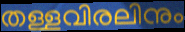
തള്ളവിരലിനും